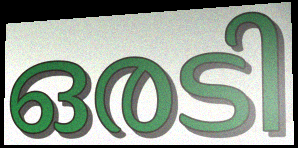
ഒരടി